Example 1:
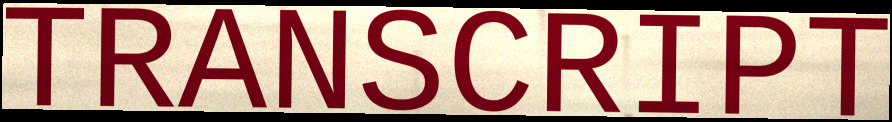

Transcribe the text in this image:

TRANSCRIPT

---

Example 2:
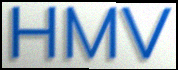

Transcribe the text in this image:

HMV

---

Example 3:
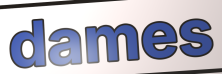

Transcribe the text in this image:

dames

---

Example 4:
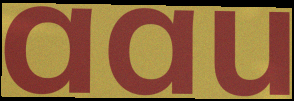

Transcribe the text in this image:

aau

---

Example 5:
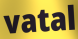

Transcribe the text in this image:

vatal